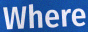
Where